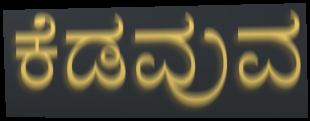
ಕೆಡವುವ